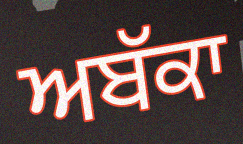
ਅਬੱਕਾ